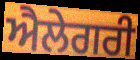
ਐਲੇਗਰੀ